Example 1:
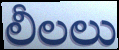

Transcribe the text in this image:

లీలలు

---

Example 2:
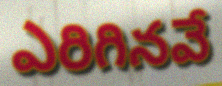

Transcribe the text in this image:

ఎరిగినవే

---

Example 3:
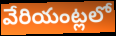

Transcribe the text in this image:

వేరియంట్లలో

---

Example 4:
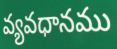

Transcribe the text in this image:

వ్యవధానము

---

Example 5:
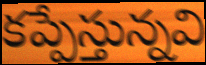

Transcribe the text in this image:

కప్పేస్తున్నవి